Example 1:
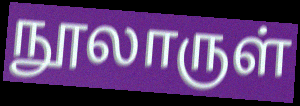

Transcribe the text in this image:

நூலாருள்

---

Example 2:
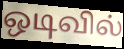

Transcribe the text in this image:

ஒடிவில்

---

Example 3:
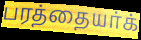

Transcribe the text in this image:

பரத்தையர்க்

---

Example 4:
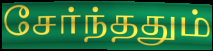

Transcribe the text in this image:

சேர்ந்ததும்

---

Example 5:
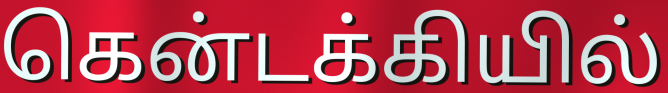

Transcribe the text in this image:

கென்டக்கியில்